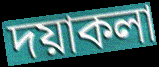
দয়াকলা